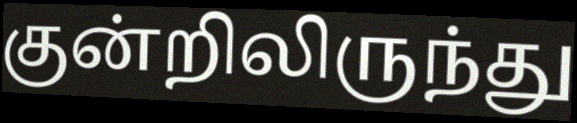
குன்றிலிருந்து